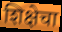
शिक्षेचा